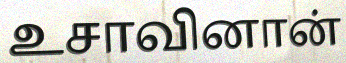
உசாவினான்